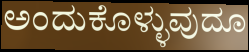
ಅಂದುಕೊಳ್ಳುವುದೂ